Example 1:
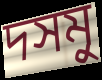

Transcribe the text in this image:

দসমু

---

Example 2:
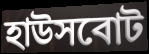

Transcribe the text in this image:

হাউসবোট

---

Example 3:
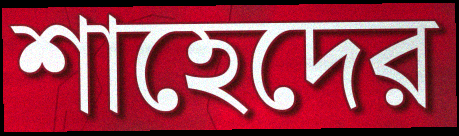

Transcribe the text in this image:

শাহেদের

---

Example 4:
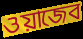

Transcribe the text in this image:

ওয়াজেব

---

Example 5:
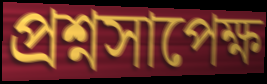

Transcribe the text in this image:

প্রশ্নসাপেক্ষ